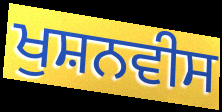
ਖੁਸ਼ਨਵੀਸ